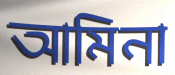
আমিনা